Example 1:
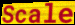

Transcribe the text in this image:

Scale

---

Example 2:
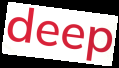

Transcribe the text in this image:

deep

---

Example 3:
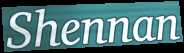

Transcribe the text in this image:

Shennan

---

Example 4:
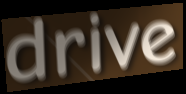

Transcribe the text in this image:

drive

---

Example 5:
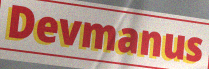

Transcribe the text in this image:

Devmanus